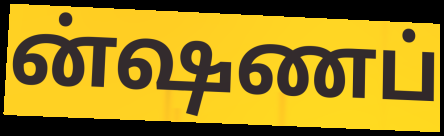
ன்ஷணப்